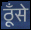
ठूँसे